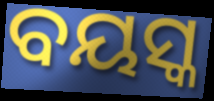
ବୟସ୍କ